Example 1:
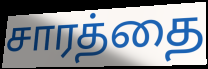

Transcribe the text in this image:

சாரத்தை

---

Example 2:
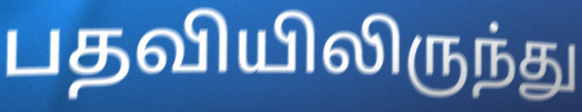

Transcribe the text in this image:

பதவியிலிருந்து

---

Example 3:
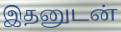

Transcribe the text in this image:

இதனுடன்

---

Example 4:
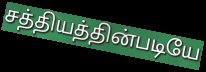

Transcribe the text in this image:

சத்தியத்தின்படியே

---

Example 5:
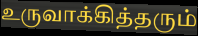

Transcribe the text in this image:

உருவாக்கித்தரும்